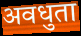
अवधुता